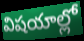
విషయాల్లో